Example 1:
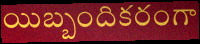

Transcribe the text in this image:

యిబ్బందికరంగా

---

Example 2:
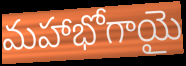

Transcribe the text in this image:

మహాభోగాయై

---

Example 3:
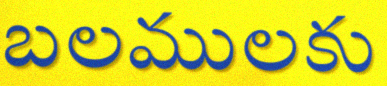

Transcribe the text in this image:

బలములకు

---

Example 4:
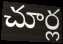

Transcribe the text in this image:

చూర్ల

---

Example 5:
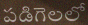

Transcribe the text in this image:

పడిగెలలో